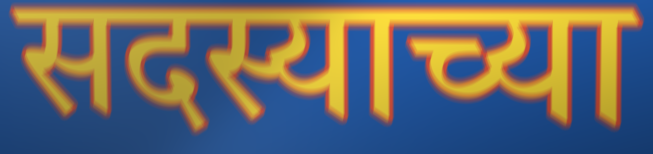
सदस्याच्या